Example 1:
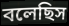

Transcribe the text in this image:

বলেছিস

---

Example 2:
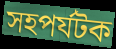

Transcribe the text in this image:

সহপর্যটক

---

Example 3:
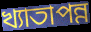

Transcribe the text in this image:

খ্যাতাপন্ন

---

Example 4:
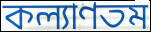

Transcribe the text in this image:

কল্যাণতম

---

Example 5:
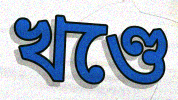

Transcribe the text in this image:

খণ্ডে